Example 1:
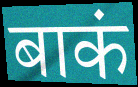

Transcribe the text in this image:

बाकं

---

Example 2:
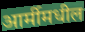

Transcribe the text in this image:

आर्मीमधील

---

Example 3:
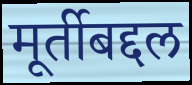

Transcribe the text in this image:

मूर्तीबद्दल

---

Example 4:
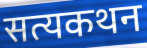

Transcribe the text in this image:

सत्यकथन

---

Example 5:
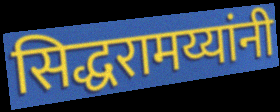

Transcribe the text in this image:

सिद्धरामय्यांनी